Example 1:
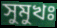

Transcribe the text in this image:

সুমুখঃ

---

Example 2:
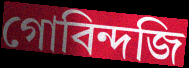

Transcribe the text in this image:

গোবিন্দজি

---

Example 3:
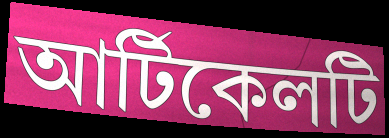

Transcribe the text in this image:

আর্টিকেলটি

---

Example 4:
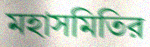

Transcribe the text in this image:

মহাসমিতির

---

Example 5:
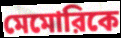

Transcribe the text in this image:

মেমোরিকে